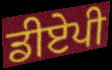
ਡੀਏਪੀ